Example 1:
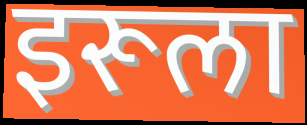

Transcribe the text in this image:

इरूला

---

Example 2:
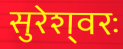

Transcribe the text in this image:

सुरेश्वरः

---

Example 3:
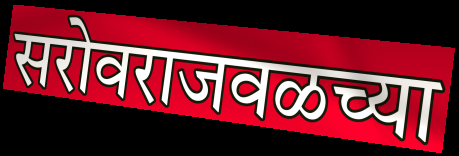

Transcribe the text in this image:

सरोवराजवळच्या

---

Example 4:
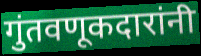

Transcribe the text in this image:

गुंतवणूकदारांनी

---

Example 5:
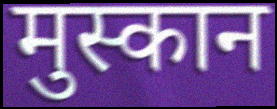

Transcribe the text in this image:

मुस्कान